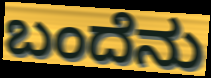
ಬಂದೆನು